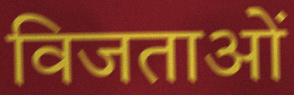
विजताओं